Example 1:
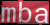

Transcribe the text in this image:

mba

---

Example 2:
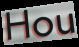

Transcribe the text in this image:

Hou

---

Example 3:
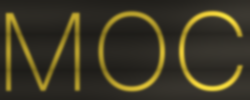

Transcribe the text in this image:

MOC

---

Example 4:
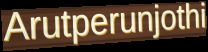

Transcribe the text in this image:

Arutperunjothi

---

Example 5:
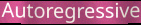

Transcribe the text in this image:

Autoregressive